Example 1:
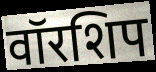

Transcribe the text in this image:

वॉरशिप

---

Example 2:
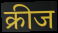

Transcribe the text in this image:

क्रीज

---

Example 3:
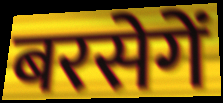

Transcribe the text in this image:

बरसेगें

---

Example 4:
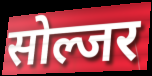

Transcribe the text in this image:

सोल्जर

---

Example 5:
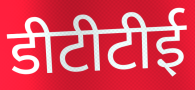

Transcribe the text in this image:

डीटीटीई